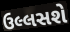
ઉલ્લસશે